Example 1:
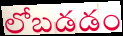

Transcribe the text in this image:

లోబడడం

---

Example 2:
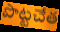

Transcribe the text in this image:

పొట్టచేత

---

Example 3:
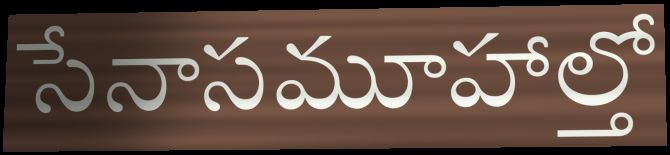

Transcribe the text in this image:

సేనాసమూహాల్తో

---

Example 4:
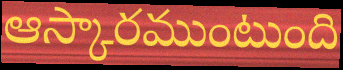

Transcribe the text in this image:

ఆస్కారముంటుంది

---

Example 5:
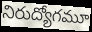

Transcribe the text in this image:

నిరుద్యోగమూ